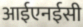
आईएनईसी